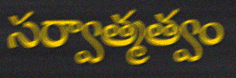
సర్వాత్మత్వం